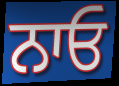
ਨਾਓ